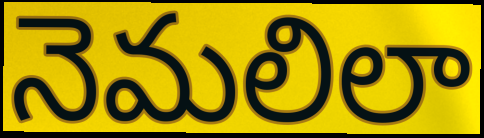
నెమలిలా